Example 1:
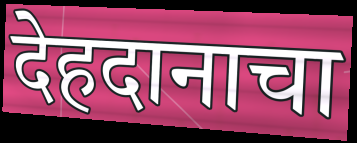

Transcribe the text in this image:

देहदानाचा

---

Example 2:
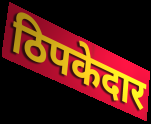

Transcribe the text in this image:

ठिपकेदार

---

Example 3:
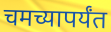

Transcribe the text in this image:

चमच्यापर्यंत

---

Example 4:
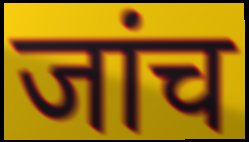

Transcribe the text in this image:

जांच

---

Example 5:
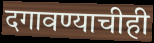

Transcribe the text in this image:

दगावण्याचीही